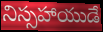
నిస్సహాయుడే